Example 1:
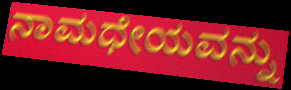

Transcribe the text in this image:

ನಾಮಧೇಯವನ್ನು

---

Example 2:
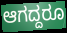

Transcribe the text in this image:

ಆಗದ್ದರೂ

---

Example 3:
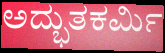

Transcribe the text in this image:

ಅದ್ಭುತಕರ್ಮಿ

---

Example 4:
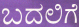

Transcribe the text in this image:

ಬದಲಿಗೆ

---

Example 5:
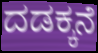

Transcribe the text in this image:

ದಡಕ್ಕನೆ